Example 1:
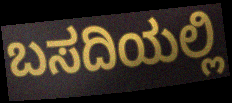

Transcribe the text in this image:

ಬಸದಿಯಲ್ಲಿ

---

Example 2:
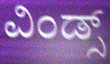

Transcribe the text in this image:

ವಿಂಡ್ಸ್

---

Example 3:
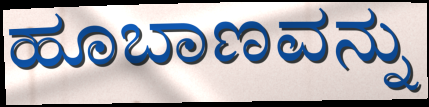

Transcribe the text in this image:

ಹೂಬಾಣವನ್ನು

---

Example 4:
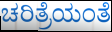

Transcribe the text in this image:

ಚರಿತ್ರೆಯಂತೆ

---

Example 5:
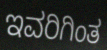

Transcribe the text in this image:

ಇವರಿಗಿಂತ